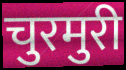
चुरमुरी